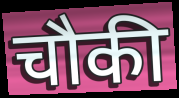
चौकी